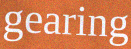
gearing